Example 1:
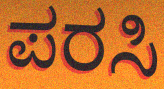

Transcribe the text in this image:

ಪರಸಿ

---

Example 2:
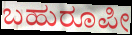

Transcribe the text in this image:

ಬಹುರೂಪೀ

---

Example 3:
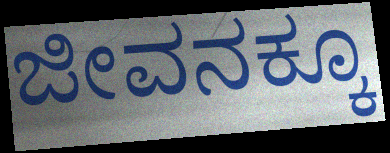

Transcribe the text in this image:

ಜೀವನಕ್ಕೂ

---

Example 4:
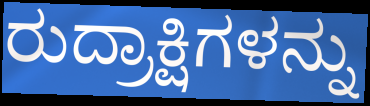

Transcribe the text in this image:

ರುದ್ರಾಕ್ಷಿಗಳನ್ನು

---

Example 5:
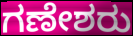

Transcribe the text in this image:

ಗಣೇಶರು